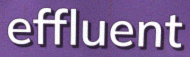
effluent